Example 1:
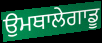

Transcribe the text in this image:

ਉਮਥਾਲੇਗਾਡੂ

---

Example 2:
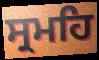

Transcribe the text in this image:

ਸ੍ਰਮਹਿ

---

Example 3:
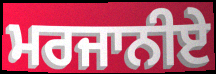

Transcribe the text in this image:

ਮਰਜਾਨੀਏ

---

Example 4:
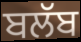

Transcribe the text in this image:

ਬਲੱਬ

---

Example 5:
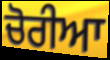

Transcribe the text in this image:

ਚੋਰੀਆ